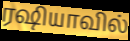
ரஷியாவில்